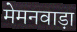
मेमनवाड़ा